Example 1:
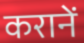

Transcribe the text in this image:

करानें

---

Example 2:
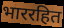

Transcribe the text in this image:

भाररहित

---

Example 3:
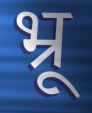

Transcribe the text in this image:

भ्रू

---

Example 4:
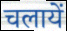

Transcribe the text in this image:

चलायें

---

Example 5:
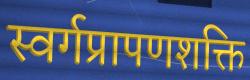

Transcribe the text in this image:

स्वर्गप्रापणशक्ति